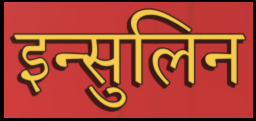
इन्सुलिन